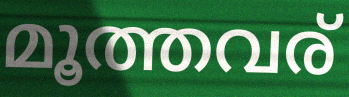
മൂത്തവര്